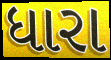
ધારા